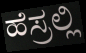
ಹೆಸ್ರಲ್ಲಿ